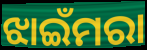
ଝାଇଁମରା